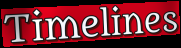
Timelines